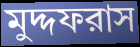
মুদ্দফরাস